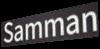
Samman